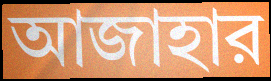
আজাহার